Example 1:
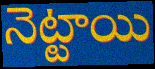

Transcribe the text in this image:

నెట్టాయి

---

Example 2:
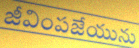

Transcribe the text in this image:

జీవింపజేయును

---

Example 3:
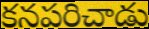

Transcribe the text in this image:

కనపరిచాడు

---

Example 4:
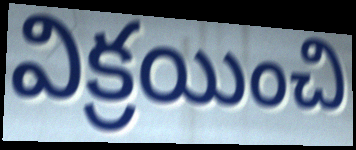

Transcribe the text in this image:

విక్రయించి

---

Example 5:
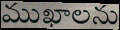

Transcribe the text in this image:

ముఖాలను